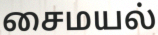
சைமயல்